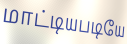
மாட்டியபடியே